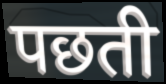
पछती